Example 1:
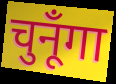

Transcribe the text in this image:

चुनूँगा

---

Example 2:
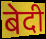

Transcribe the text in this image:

बेदी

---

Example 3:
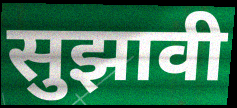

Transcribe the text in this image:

सुझावी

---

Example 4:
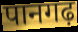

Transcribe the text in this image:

पानगढ़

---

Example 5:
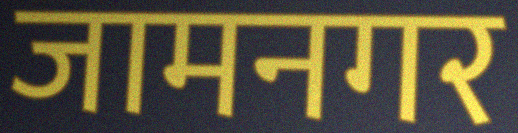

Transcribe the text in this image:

जामनगर